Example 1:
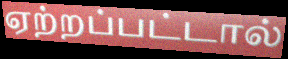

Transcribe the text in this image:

ஏற்றப்பட்டால்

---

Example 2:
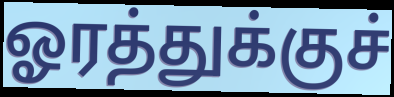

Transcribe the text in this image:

ஓரத்துக்குச்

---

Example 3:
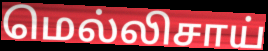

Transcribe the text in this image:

மெல்லிசாய்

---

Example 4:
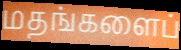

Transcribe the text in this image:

மதங்களைப்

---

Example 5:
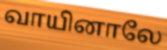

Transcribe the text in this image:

வாயினாலே